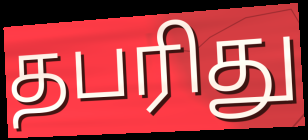
தபரிது